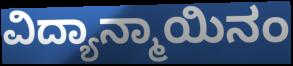
ವಿದ್ಯಾನ್ಮಾಯಿನಂ